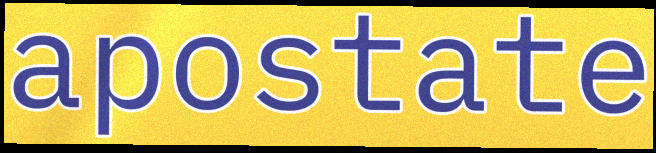
apostate